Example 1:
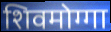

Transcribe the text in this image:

शिवमोग्गा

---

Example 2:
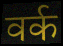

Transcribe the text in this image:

वर्क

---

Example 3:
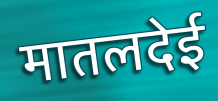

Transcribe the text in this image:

मातलदेई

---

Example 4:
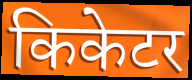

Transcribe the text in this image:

किकेटर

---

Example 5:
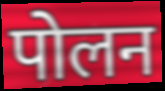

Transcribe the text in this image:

पोलन